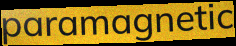
paramagnetic